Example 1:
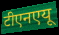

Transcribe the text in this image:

टीएनएयू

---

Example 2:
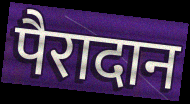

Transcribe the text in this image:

पैरादान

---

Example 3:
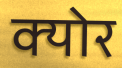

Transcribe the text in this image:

क्योर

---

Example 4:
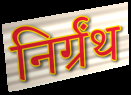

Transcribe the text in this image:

निर्ग्रंथ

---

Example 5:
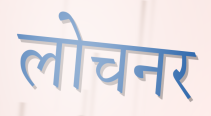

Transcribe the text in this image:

लोचनर